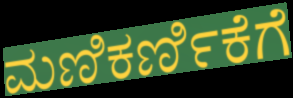
ಮಣಿಕರ್ಣಿಕೆಗೆ